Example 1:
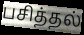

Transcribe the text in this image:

பசித்தல்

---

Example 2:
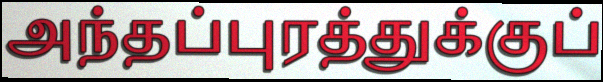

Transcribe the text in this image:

அந்தப்புரத்துக்குப்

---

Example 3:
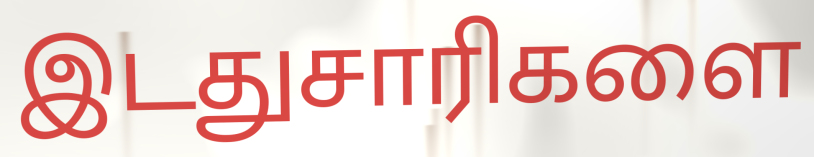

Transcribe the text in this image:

இடதுசாரிகளை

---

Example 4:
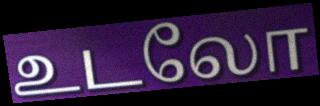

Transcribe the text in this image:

உடலோ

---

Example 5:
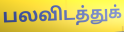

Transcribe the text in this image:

பலவிடத்துக்